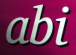
abi